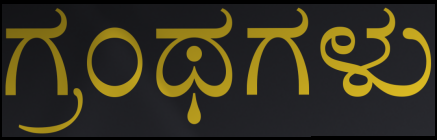
ಗ್ರಂಥಗಳು